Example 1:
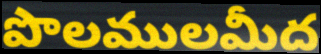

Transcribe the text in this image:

పొలములమీద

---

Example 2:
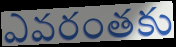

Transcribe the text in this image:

ఎవరంతకు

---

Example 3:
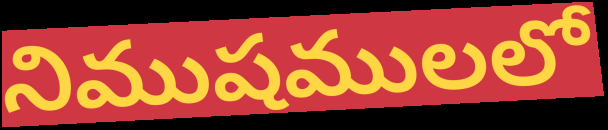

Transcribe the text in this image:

నిముషములలో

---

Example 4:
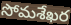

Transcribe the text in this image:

సోమశేఖర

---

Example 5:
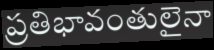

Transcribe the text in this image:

ప్రతిభావంతులైనా